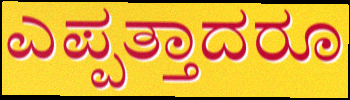
ಎಪ್ಪತ್ತಾದರೂ